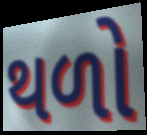
થળો